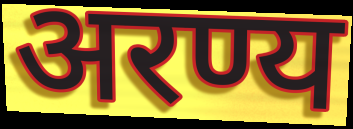
अरण्य